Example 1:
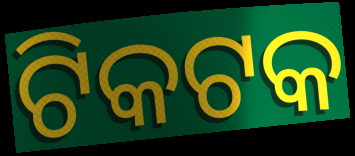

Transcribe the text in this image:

ଟିକଟକ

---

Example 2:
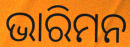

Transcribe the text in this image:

ଭାରିମନ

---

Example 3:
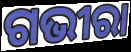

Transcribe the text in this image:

ଗଭୀରା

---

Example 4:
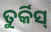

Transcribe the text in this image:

ତୁର୍କିସ୍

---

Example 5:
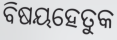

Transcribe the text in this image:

ବିଷୟହେତୁକ